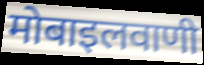
मोबाइलवाणी